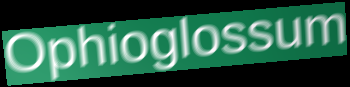
Ophioglossum